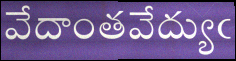
వేదాంతవేద్యుఁ